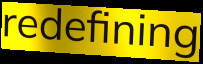
redefining